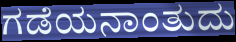
ಗಡೆಯನಾಂತುದು